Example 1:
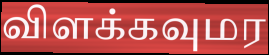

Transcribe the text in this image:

விளக்கவுமர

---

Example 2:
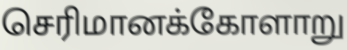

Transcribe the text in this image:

செரிமானக்கோளாறு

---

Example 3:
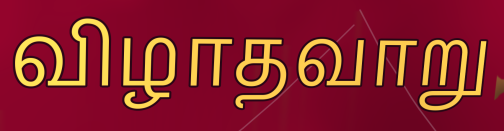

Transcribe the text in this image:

விழாதவாறு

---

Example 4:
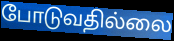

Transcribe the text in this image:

போடுவதில்லை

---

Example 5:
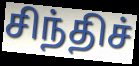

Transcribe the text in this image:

சிந்திச்